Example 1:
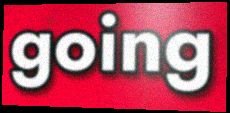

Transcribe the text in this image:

going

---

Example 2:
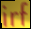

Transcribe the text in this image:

irf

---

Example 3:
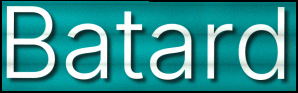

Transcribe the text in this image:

Batard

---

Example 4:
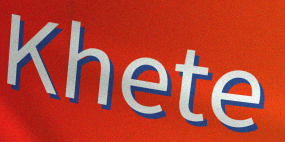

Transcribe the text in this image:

Khete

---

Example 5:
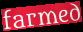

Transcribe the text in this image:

farmed